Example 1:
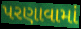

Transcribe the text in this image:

પરણાવામાં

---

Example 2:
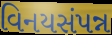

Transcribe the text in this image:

વિનયસંપન્ન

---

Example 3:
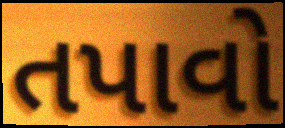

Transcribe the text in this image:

તપાવો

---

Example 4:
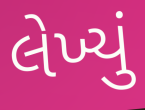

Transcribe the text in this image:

લેખ્યું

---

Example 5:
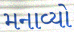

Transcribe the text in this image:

મનાવ્યો